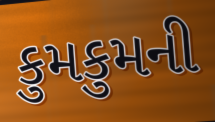
કુમકુમની